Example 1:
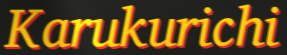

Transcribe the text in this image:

Karukurichi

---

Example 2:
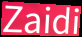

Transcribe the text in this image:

Zaidi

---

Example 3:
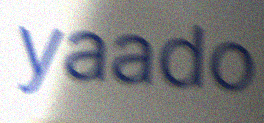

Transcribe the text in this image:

yaado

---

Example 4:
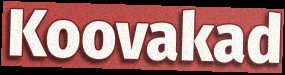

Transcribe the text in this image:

Koovakad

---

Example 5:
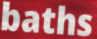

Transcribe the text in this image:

baths